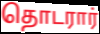
தொடரார்